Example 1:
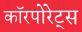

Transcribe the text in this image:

कॉरपोरेट्स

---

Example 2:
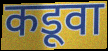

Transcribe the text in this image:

कडूवा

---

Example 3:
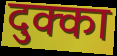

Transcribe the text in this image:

दुक्‍का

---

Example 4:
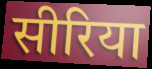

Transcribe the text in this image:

सीरिया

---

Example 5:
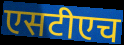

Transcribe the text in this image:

एसटीएच